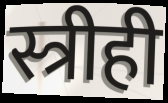
स्त्रीही